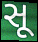
સૂ